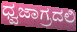
ಧ್ವಜಾಗ್ರದಲಿ